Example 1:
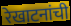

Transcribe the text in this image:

रेखाटनांची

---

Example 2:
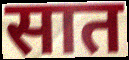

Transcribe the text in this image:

सात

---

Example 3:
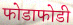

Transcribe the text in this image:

फोडाफोडी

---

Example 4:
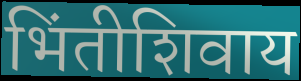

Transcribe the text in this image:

भिंतीशिवाय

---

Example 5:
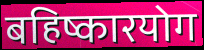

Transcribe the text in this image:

बहिष्कारयोग